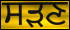
ਸੜਣ